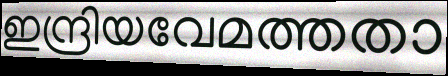
ഇന്ദ്രിയവേമത്തതാ